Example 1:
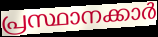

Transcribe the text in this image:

പ്രസ്ഥാനക്കാർ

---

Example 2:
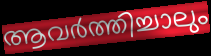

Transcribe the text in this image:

ആവർത്തിച്ചാലും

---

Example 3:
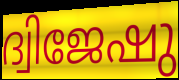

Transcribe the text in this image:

ദ്വിജേഷു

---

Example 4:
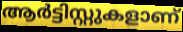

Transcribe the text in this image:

ആർട്ടിസ്റ്റുകളാണ്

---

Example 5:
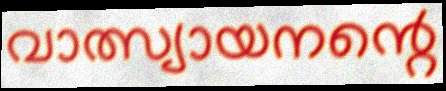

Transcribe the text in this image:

വാത്സ്യായനന്റെ